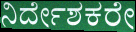
ನಿರ್ದೇಶಕರೇ